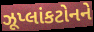
ઝૂપ્લાંકટોનને